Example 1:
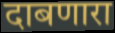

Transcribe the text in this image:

दाबणारा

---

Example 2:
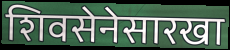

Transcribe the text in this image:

शिवसेनेसारखा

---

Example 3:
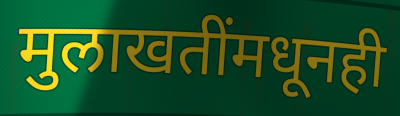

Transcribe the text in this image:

मुलाखतींमधूनही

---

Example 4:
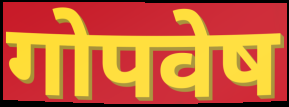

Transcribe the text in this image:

गोपवेष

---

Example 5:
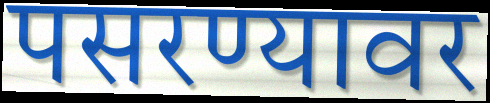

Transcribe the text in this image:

पसरण्यावर